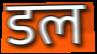
डल